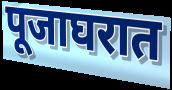
पूजाघरात